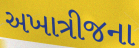
અખાત્રીજના